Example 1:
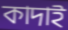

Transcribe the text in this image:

কাদাই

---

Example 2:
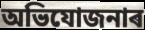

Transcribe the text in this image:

অভিযোজনাৰ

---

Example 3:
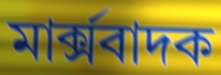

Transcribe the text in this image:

মাৰ্ক্সবাদক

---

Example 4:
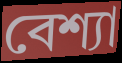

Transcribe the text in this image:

বেশ্যা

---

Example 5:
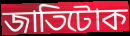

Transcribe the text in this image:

জাতিটোক